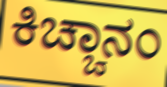
ಕಿಚ್ಚಾನಂ